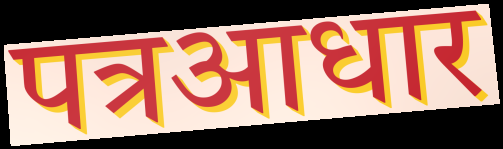
पत्रआधार